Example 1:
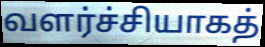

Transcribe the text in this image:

வளர்ச்சியாகத்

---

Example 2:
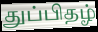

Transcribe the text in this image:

துப்பிதழ்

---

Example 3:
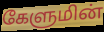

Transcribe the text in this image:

கேளுமின்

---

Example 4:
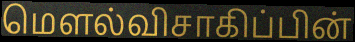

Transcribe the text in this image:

மௌல்விசாகிப்பின்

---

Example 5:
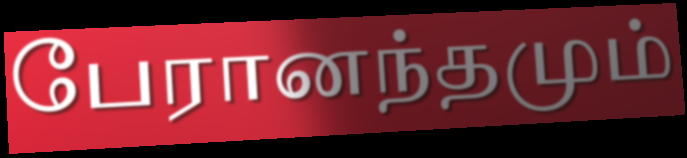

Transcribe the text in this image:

பேரானந்தமும்